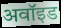
अवॉइड